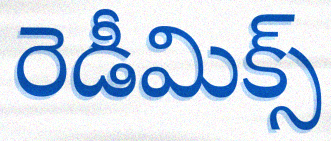
రెడీమిక్స్